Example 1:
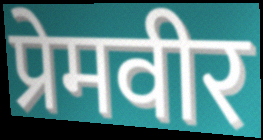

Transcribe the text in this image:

प्रेमवीर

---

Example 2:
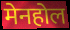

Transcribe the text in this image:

मेनहोल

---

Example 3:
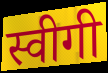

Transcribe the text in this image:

स्वीगी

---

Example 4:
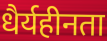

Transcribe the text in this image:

धैर्यहीनता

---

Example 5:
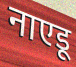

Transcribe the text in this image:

नाएडू